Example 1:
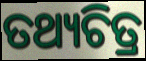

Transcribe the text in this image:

ତଥ୍ୟଚିତ୍ର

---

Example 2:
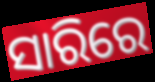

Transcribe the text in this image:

ସାରିରେ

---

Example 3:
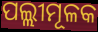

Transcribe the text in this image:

ପଲ୍ଲୀମୂଳକ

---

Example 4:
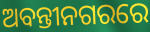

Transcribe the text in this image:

ଅବନ୍ତୀନଗରରେ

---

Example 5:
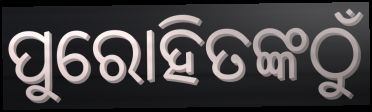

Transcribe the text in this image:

ପୁରୋହିତଙ୍କଠୁଁ